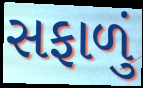
સફાળું